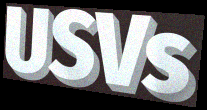
USVs